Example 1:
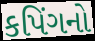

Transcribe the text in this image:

કપિંગનો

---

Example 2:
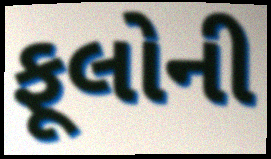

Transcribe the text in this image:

ફૂલોની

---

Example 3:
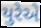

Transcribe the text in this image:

યુરેએ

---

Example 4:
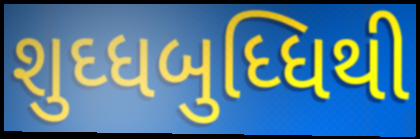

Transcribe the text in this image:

શુઘ્ધબુધ્ધિથી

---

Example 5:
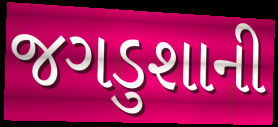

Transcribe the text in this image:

જગડુશાની